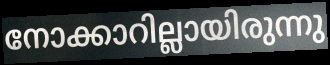
നോക്കാറില്ലായിരുന്നു